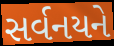
સર્વનયને